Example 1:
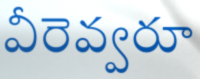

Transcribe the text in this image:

వీరెవ్వరూ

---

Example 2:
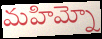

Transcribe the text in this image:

మహిమ్నో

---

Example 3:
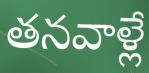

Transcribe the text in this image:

తనవాళ్లే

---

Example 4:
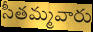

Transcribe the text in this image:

సీతమ్మవారు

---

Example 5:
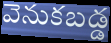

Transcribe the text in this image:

వెనుకబడ్డ